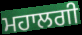
ਮਹਾਲਗੀ